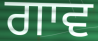
ਗਾਵ